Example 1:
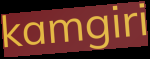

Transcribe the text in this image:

kamgiri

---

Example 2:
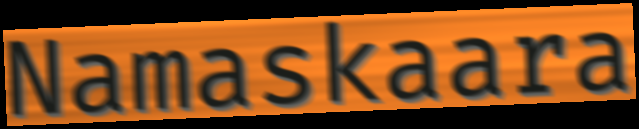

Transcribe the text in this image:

Namaskaara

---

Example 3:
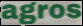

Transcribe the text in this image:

agros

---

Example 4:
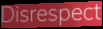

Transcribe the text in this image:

Disrespect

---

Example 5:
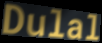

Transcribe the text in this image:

Dulal